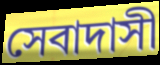
সেবাদাসী